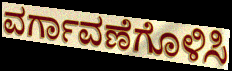
ವರ್ಗಾವಣೆಗೊಳಿಸಿ